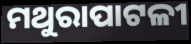
ମଥୁରାପାଟଳୀ